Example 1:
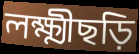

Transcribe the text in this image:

লক্ষ্মীছড়ি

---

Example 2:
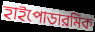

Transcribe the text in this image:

হাইপোডারমিক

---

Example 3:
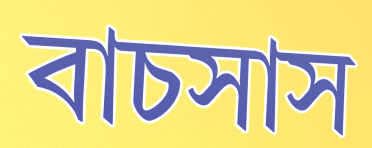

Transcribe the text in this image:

বাচসাস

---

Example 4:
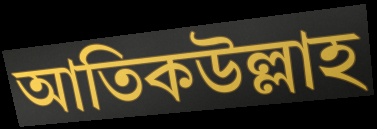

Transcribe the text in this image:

আতিকউল্লাহ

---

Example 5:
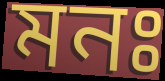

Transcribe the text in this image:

মনঃ